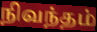
நிவந்தம்